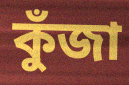
কুঁজা